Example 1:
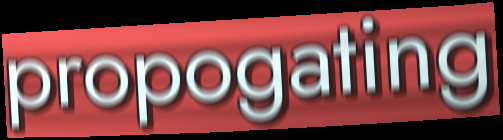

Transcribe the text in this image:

propogating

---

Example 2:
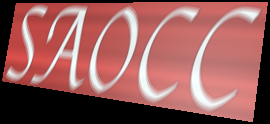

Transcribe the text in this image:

SAOCC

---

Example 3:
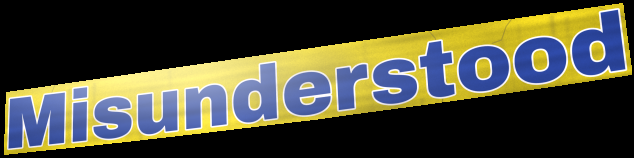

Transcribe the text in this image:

Misunderstood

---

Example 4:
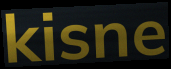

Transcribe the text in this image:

kisne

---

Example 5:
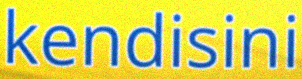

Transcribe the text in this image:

kendisini